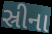
સ્રીના